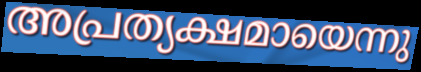
അപ്രത്യക്ഷമായെന്നു